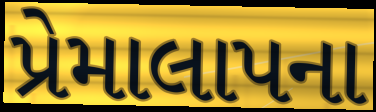
પ્રેમાલાપના